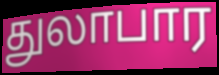
துலாபார